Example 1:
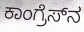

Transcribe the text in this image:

ಕಾಂಗ್ರೆಸ್‍ನ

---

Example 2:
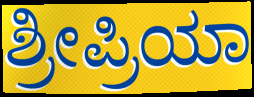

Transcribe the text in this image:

ಶ್ರೀಪ್ರಿಯಾ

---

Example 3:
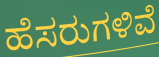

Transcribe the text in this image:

ಹೆಸರುಗಳಿವೆ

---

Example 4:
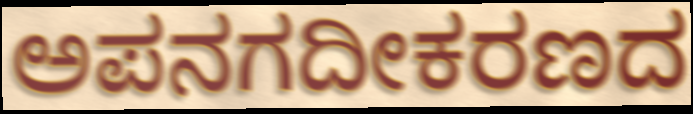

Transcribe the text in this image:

ಅಪನಗದೀಕರಣದ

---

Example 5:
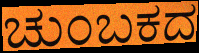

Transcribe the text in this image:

ಚುಂಬಕದ